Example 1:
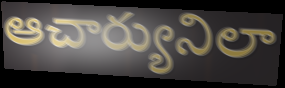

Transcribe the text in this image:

ఆచార్యునిలా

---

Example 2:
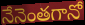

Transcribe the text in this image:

నేనెంతగానో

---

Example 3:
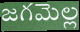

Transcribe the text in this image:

జగమెల్ల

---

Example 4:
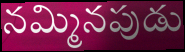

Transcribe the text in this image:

నమ్మినపుడు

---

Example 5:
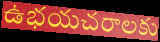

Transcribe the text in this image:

ఉభయచరాలకు